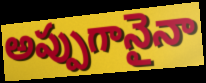
అప్పుగానైనా